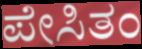
ಪೇಸಿತಂ